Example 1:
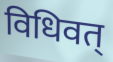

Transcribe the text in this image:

विधिवत्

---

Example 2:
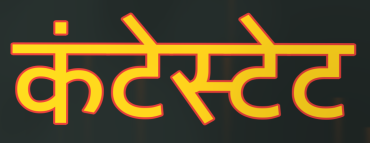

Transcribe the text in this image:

कंटेस्टेट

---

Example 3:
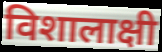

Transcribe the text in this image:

विशालाक्षी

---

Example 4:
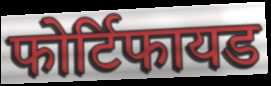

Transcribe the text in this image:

फोर्टिफायड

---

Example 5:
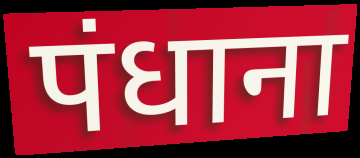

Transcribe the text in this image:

पंधाना